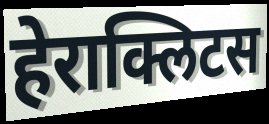
हेराक्लिटस